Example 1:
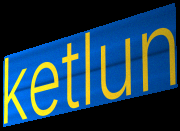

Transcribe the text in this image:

ketlun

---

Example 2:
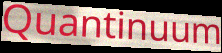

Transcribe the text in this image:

Quantinuum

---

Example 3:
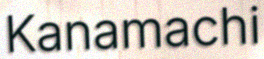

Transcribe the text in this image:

Kanamachi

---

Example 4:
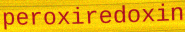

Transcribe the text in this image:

peroxiredoxin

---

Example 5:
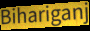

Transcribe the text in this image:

Bihariganj